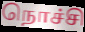
நொச்சி